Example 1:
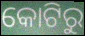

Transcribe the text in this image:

କୋଟିରୁ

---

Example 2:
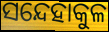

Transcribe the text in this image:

ସନ୍ଦେହାକୁଳ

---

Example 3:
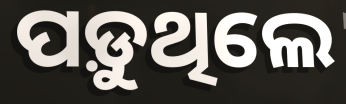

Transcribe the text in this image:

ପଡ଼ୁଥିଲେ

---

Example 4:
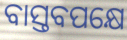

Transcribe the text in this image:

ବାସ୍ତବପକ୍ଷେ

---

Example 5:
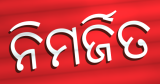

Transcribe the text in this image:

ନିମର୍ଜିତ